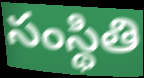
సంస్థితి